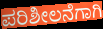
ಪರಿಶೀಲನೆಗಾಗಿ